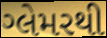
ગ્લેમરથી